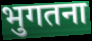
भुगतना